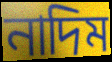
নাদিম